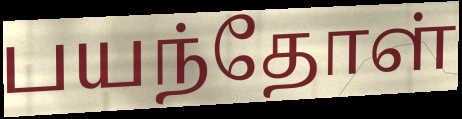
பயந்தோள்